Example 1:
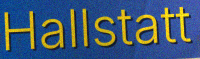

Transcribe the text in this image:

Hallstatt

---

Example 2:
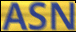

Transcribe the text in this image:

ASN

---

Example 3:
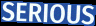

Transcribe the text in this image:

SERIOUS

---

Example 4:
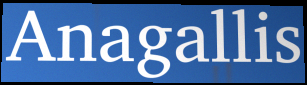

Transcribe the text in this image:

Anagallis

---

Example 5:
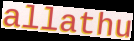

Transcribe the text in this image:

allathu